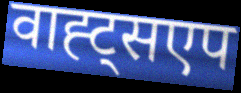
वाह्ट्सएप